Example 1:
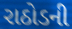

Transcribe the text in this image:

રાઠોડની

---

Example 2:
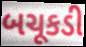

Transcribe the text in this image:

બચૂકડી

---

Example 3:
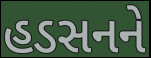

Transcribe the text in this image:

હડસનને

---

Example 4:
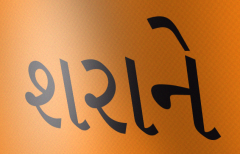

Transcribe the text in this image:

શરાને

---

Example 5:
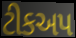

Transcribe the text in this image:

ટીકઅપ